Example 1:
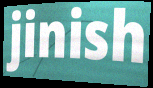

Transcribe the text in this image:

jinish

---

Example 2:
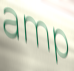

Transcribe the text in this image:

amp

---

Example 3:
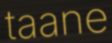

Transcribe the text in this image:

taane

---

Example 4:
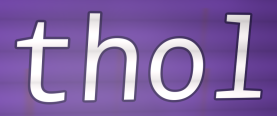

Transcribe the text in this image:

thol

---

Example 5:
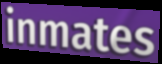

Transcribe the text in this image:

inmates